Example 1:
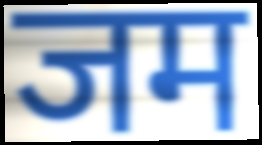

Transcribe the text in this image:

जम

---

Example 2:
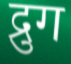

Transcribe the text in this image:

द्रुग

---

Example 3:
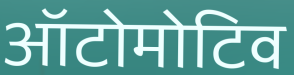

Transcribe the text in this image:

ऑटोमोटिव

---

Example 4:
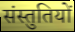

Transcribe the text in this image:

संस्तुतियों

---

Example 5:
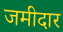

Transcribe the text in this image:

जमीदार